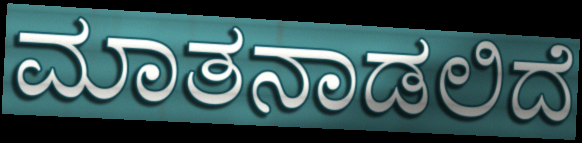
ಮಾತನಾಡಲಿದೆ